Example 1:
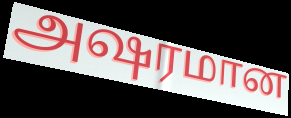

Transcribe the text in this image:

அஷரமான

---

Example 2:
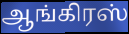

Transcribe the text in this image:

ஆங்கிரஸ்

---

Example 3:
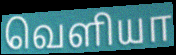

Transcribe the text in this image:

வெளியா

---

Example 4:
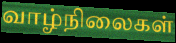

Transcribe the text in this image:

வாழ்நிலைகள்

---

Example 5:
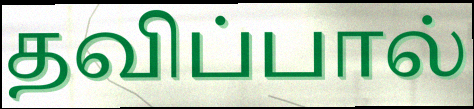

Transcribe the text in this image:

தவிப்பால்